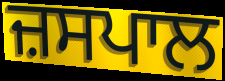
ਜ਼ਸਪਾਲ